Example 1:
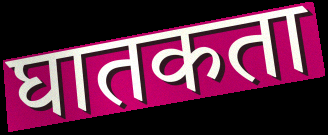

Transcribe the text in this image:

घातकता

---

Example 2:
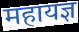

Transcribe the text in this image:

महायज्ञ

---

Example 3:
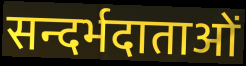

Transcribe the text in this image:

सन्दर्भदाताओं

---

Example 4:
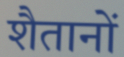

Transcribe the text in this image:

शैतानों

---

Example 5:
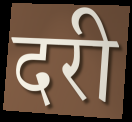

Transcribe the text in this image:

दरी